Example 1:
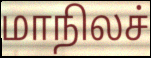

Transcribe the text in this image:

மாநிலச்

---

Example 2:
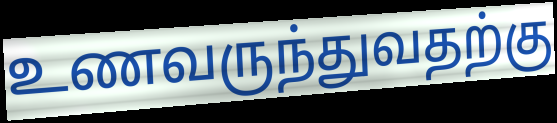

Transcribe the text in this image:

உணவருந்துவதற்கு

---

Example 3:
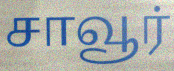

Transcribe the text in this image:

சாவூர்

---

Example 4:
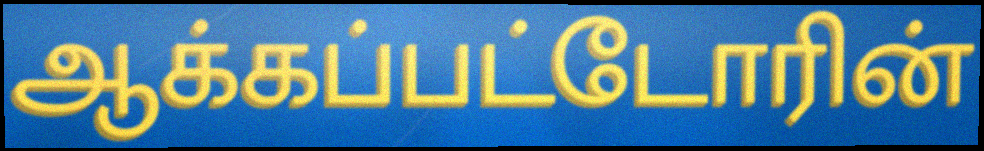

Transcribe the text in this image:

ஆக்கப்பட்டோரின்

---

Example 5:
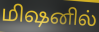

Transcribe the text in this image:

மிஷனில்